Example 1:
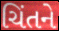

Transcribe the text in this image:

ચિંતને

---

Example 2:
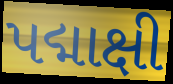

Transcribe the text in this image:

પદ્માક્ષી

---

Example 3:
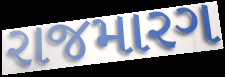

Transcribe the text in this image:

રાજમારગ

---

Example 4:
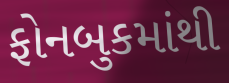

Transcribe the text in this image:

ફોનબુકમાંથી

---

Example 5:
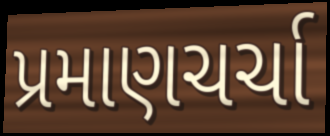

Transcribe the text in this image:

પ્રમાણચર્ચા